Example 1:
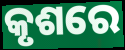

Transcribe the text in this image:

କୃଶରେ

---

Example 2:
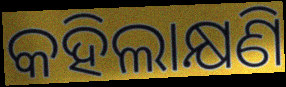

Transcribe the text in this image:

କହିଲାକ୍ଷଣି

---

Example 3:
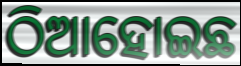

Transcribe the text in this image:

ଠିଆହୋଇଛ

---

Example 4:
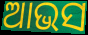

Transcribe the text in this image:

ଆଭସ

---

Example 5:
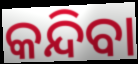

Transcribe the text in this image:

କନ୍ଦିବା